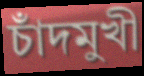
চাঁদমুখী